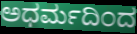
ಅಧರ್ಮದಿಂದ